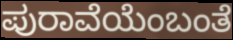
ಪುರಾವೆಯೆಂಬಂತೆ